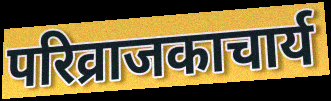
परिव्राजकाचार्य